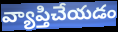
వ్యాప్తిచేయడం